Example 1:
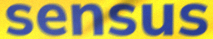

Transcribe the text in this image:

sensus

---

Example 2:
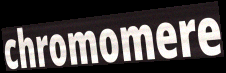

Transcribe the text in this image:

chromomere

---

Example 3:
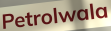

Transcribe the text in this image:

Petrolwala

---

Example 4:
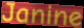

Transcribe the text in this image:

Janine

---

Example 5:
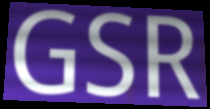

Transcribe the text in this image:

GSR